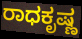
ರಾಧಕೃಷ್ಣ